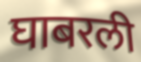
घाबरली